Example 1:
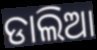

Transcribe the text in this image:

ଡାଲିଆ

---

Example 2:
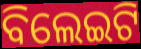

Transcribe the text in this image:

ବିଲେଇଟି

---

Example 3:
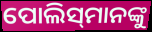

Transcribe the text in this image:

ପୋଲିସ୍‌ମାନଙ୍କୁ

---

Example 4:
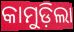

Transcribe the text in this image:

କାମୁଡ଼ିଲା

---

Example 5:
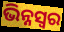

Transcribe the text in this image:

ଭିନ୍ନସ୍ବର